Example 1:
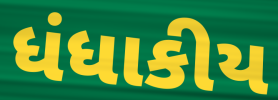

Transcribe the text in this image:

ધંધાકીય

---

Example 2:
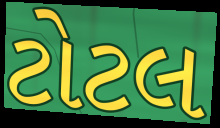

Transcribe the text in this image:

ટોટલ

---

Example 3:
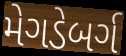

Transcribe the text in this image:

મેગડેબર્ગ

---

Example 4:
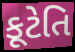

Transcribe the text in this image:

કૂટેતિ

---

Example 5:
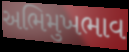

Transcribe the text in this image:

અભિમુખભાવ